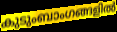
കുടുംബാംഗങ്ങളിൽ